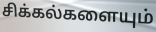
சிக்கல்களையும்